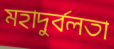
মহাদুর্বলতা